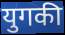
युगकी